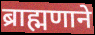
ब्राह्मणाने